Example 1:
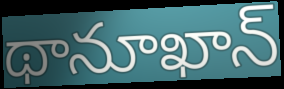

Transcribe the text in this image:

థానూఖాన్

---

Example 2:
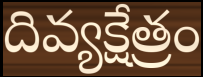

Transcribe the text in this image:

దివ్యక్షేత్రం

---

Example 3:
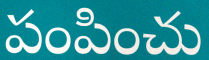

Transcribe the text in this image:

పంపించు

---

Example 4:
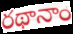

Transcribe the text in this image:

రథానాం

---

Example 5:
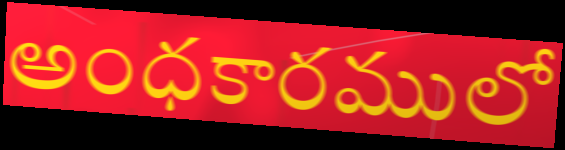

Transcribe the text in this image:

అంధకారములో